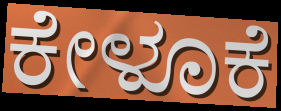
ಕೇಳೂಕೆ